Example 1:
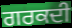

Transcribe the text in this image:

ਗਰਕਦੀ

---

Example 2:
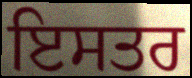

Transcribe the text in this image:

ਇਸਤਰ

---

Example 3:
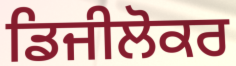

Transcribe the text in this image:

ਡਿਜੀਲੋਕਰ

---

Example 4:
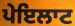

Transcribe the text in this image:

ਪੇਇਲਾਟ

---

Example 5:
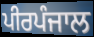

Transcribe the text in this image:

ਪੀਰਪੰਜਾਲ